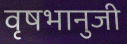
वृषभानुजी